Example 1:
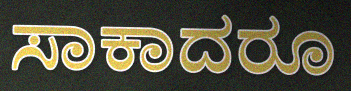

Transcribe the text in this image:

ಸಾಕಾದರೂ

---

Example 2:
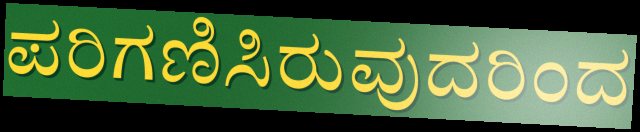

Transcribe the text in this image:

ಪರಿಗಣಿಸಿರುವುದರಿಂದ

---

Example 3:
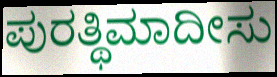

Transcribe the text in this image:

ಪುರತ್ಥಿಮಾದೀಸು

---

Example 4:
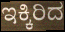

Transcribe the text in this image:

ಇಕ್ಕಿರಿದ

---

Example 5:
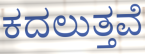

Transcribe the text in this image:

ಕದಲುತ್ತವೆ